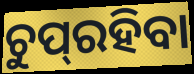
ଚୁପ୍‌ରହିବା